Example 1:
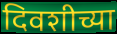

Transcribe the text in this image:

दिवशीच्या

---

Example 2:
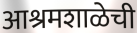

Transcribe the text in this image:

आश्रमशाळेची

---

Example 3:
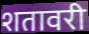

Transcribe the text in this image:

शतावरी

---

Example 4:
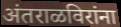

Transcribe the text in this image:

अंतराळविरांना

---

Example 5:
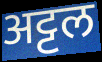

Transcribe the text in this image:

अट्टल